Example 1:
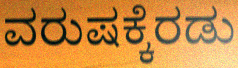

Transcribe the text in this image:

ವರುಷಕ್ಕೆರಡು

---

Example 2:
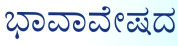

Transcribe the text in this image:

ಭಾವಾವೇಷದ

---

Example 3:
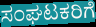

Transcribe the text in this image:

ಸಂಘಟಕರಿಗೆ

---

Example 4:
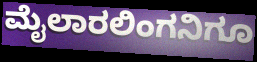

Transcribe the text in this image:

ಮೈಲಾರಲಿಂಗನಿಗೂ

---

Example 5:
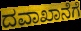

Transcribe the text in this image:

ದವಾಖಾನೆಗೆ